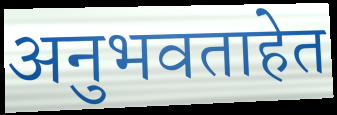
अनुभवताहेत